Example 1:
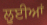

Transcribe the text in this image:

ਲੂਈਆਂ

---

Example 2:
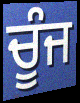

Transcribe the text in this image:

ਚੂੰਜ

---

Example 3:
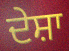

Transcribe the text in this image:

ਦੇਸ਼ਾ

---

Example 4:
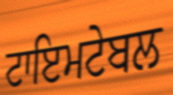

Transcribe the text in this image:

ਟਾਇਮਟੇਬਲ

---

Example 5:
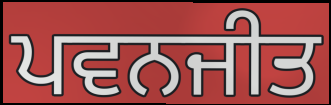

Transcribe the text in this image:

ਪਵਨਜੀਤ